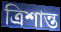
ত্রিশান্ত